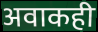
अवाकही